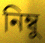
নিম্বু